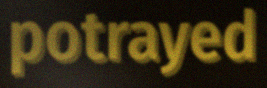
potrayed